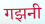
गझनी